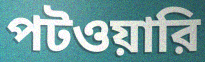
পটওয়ারি